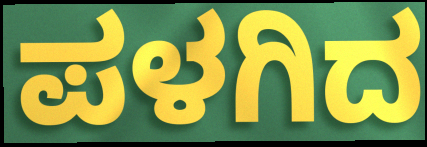
ಪಳಗಿದ